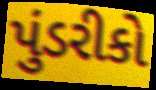
પુંડરીકો